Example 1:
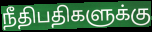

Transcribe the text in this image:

நீதிபதிகளுக்கு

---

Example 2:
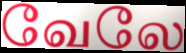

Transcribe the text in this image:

வேலே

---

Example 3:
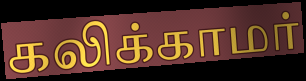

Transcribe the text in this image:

கலிக்காமர்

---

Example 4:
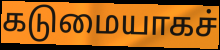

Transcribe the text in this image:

கடுமையாகச்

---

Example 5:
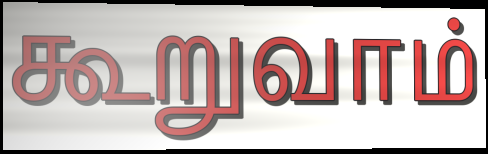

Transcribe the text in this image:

கூறுவாம்